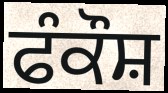
ਫੰਕੌਸ਼